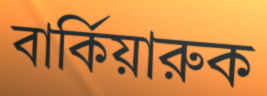
বার্কিয়ারুক